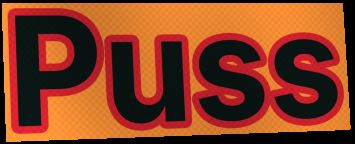
Puss